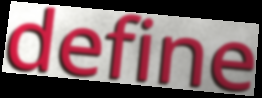
define